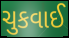
ચુકવાઈ